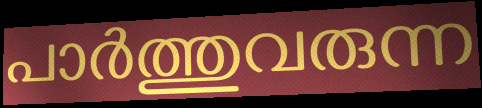
പാർത്തുവരുന്ന